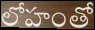
లోహంతో